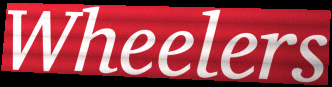
Wheelers